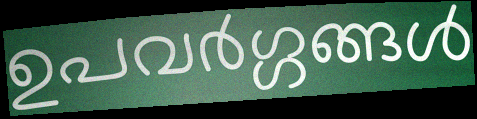
ഉപവർഗ്ഗങ്ങൾ